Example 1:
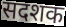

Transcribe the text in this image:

सदशक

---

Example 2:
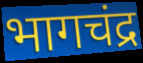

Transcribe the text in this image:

भागचंद्र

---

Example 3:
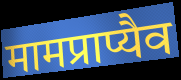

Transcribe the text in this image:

मामप्राप्यैव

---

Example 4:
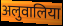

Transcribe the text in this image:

अलुवालिया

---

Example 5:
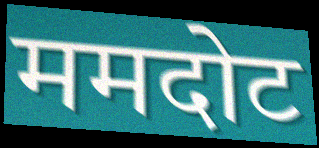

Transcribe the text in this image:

ममदोट